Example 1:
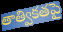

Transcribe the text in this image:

తాత్వికతపై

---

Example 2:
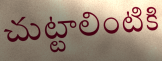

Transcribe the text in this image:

చుట్టాలింటికి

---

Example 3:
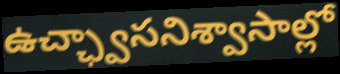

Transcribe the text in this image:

ఉచ్ఛ్వాసనిశ్వాసాల్లో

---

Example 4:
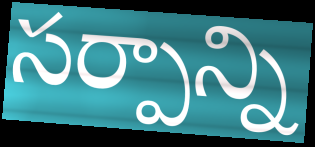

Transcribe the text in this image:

సర్పాన్ని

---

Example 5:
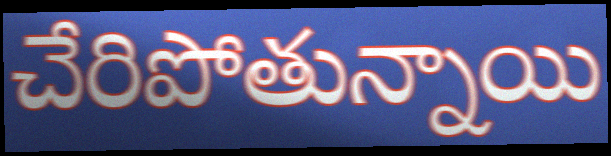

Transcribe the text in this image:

చేరిపోతున్నాయి